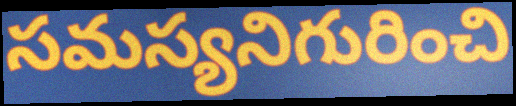
సమస్యనిగురించి